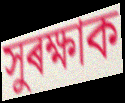
সুৰক্ষাক